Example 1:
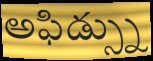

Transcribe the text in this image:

అఫిడ్స్ను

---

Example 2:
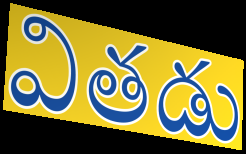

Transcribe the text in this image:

వితడు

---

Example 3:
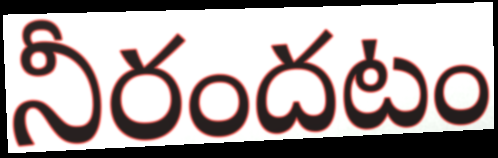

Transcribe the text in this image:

నీరందటం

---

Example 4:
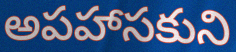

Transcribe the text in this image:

అపహాసకుని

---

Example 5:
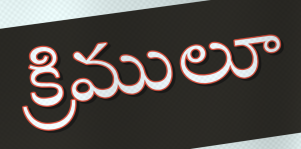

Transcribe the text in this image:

క్రిములూ